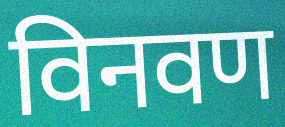
विनवण